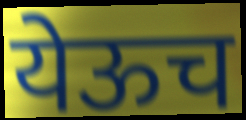
येऊच